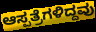
ಆಸ್ಪತ್ರೆಗಳಿದ್ದವು